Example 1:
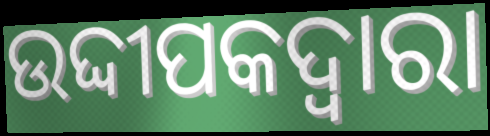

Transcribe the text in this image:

ଉଦ୍ଦୀପକଦ୍ବାରା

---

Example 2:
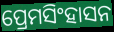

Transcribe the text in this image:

ପ୍ରେମସିଂହାସନ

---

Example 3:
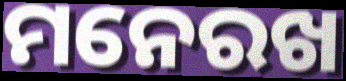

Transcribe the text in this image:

ମନେରଖ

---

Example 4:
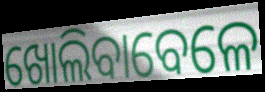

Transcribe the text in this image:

ଖୋଲିବାବେଳେ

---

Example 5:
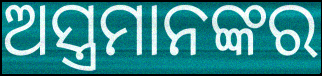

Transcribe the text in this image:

ଅସ୍ତ୍ରମାନଙ୍କର